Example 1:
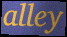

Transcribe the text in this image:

alley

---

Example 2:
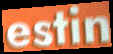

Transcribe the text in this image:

estin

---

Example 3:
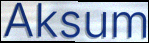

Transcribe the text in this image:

Aksum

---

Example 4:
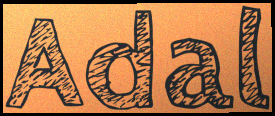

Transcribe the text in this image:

Adal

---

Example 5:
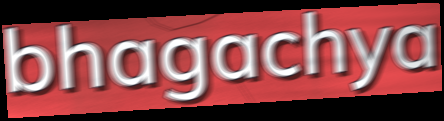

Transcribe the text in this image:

bhagachya